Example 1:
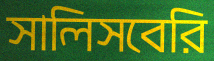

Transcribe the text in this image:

সালিসবেরি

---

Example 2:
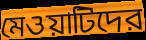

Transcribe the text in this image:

মেওয়াটিদের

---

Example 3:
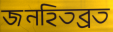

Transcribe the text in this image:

জনহিতব্রত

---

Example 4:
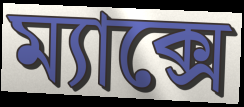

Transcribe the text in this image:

ম্যাক্সে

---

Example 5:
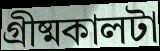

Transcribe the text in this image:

গ্রীষ্মকালটা